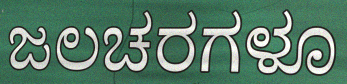
ಜಲಚರಗಳೂ